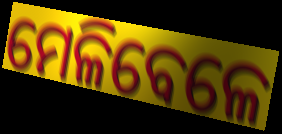
ମେଳିବେଳେ